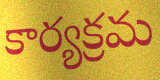
కార్యక్రమ